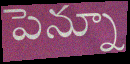
పెన్నూ